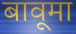
बावूमा